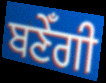
ਬਣੇਁਗੀ